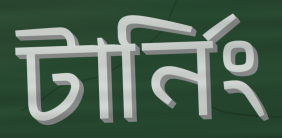
টাৰ্নিং